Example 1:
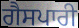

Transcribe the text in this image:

ਗੈਸਪਾਰੀ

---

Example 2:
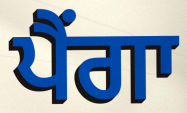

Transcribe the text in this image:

ਪੈਂਗਾ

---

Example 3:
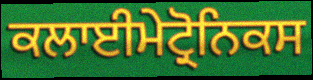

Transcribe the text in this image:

ਕਲਾਈਮੇਟ੍ਰੋਨਿਕਸ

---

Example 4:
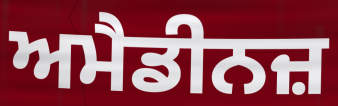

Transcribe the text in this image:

ਅਮੈਡੀਨਜ਼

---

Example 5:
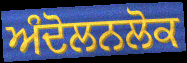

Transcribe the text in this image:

ਅੰਦੋਲਨਲੋਕ